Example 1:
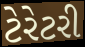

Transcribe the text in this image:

ટેરેટરી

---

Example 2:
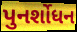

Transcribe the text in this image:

પુનર્શોધન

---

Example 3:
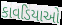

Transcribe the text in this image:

કાવડિયાઓ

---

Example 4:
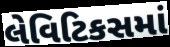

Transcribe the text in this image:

લેવિટિકસમાં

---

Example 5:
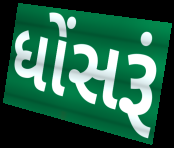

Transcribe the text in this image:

ધોંસરૂં